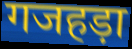
गजहड़ा